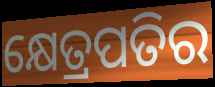
କ୍ଷେତ୍ରପତିର